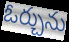
ఓర్చును